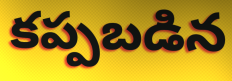
కప్పబడిన